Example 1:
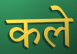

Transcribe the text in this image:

कले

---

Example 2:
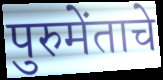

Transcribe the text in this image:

पुरुमेंताचे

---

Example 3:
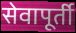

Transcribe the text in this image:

सेवापूर्ती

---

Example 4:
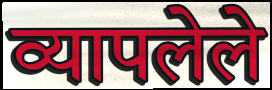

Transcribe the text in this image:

व्यापलेले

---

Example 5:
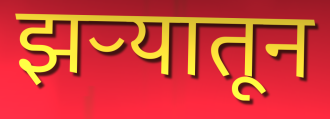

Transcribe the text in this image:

झऱ्यातून